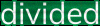
divided